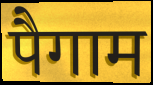
पैगाम